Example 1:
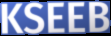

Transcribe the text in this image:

KSEEB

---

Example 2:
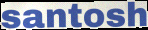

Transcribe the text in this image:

santosh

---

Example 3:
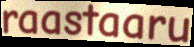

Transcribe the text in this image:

raastaaru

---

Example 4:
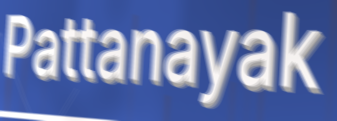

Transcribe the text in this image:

Pattanayak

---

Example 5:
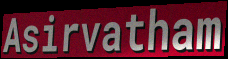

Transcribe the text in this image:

Asirvatham